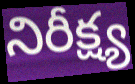
నిరీక్ష్య